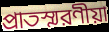
প্রাতস্মরণীয়া